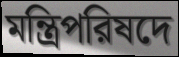
মন্ত্রিপরিষদে